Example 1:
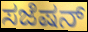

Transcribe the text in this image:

ಸಜೆಷನ್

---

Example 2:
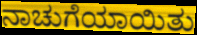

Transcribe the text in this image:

ನಾಚುಗೆಯಾಯಿತು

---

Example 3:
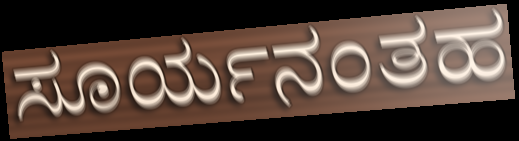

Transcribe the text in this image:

ಸೂರ್ಯನಂತಹ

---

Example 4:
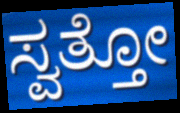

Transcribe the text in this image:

ಸ್ವತ್ತೋ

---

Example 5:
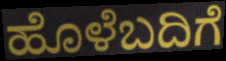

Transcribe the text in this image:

ಹೊಳೆಬದಿಗೆ